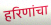
हरिणांचा